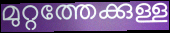
മുറ്റത്തേക്കുള്ള